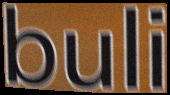
buli